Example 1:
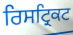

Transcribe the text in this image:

ਰਿਸਟ੍ਰਿਕਟ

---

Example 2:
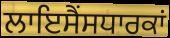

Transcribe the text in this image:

ਲਾਇਸੈਂਸਧਾਰਕਾਂ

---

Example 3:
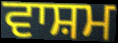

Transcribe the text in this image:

ਵਾਸ਼ਮ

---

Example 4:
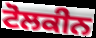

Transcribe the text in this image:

ਟੋਲਕੀਨ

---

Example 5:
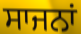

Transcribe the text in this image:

ਸਾਜਨਾਂ